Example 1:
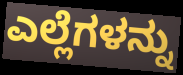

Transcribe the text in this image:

ಎಲ್ಲೆಗಳನ್ನು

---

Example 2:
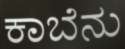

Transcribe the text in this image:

ಕಾಬೆನು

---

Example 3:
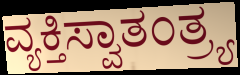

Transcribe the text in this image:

ವ್ಯಕ್ತಿಸ್ವಾತಂತ್ರ್ಯ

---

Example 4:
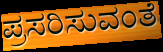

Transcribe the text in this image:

ಪ್ರಸರಿಸುವಂತೆ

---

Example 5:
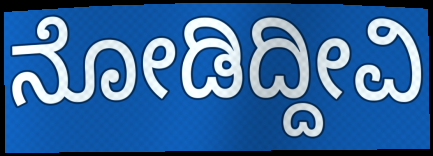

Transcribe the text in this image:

ನೋಡಿದ್ದೀವಿ